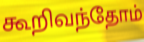
கூறிவந்தோம்